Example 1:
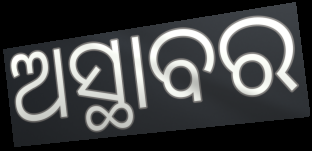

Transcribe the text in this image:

ଅସ୍ଥାବର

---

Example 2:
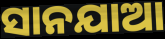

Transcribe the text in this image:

ସାନଯାଆ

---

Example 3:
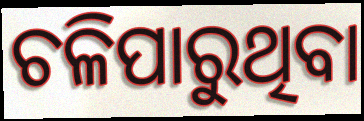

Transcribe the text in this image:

ଚଳିପାରୁଥିବା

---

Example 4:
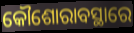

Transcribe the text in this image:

କୌଶୋରାବସ୍ଥାରେ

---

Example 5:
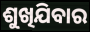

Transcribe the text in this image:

ଶୁଖିଯିବାର